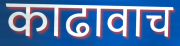
काढावाच